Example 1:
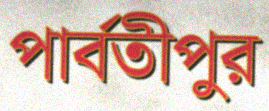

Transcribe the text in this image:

পার্বতীপুর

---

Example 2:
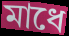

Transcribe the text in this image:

মাধে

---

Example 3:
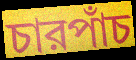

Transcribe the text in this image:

চারপাঁচ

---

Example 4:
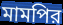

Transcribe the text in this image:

মামপির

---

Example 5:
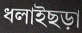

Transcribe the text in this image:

ধলাইছড়া